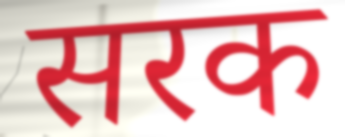
सरक